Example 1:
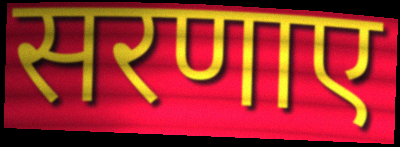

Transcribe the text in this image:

सरणाए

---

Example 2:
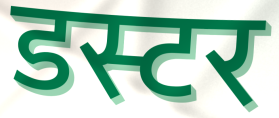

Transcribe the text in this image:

डस्टर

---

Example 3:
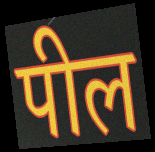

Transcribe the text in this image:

पील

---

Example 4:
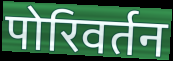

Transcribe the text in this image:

पोरिवर्तन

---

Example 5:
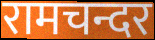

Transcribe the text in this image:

रामचन्दर